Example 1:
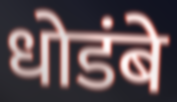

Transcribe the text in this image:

धोडंबे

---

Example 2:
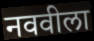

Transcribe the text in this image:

नववीला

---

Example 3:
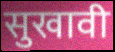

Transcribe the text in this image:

सुखावी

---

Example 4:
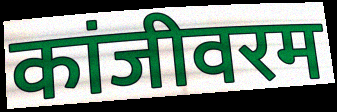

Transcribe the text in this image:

कांजीवरम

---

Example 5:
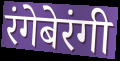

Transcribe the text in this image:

रंगेबेरंगी